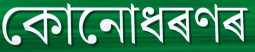
কোনোধৰণৰ